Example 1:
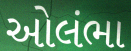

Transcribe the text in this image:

ઓલંભા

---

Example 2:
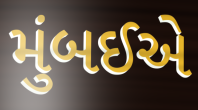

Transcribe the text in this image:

મુંબઈએ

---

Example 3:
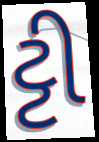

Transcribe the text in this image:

ટ્ટી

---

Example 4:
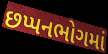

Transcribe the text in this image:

છપ્પનભોગમાં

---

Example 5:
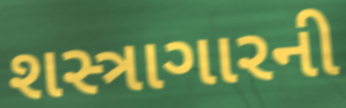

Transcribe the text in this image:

શસ્ત્રાગારની